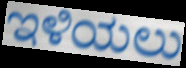
ಇಳಿಯಲು